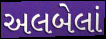
અલબેલાં